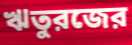
ঋতুরজের